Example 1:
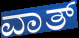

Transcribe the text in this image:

ವಾತ್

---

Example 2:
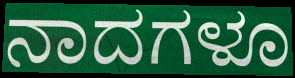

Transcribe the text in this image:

ನಾದಗಳೂ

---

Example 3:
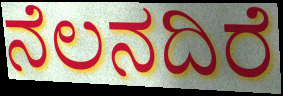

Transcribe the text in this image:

ನೆಲನದಿರೆ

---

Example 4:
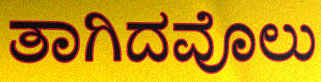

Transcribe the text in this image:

ತಾಗಿದವೊಲು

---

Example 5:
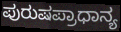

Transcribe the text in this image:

ಪುರುಷಪ್ರಾಧಾನ್ಯ